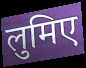
लुमिए